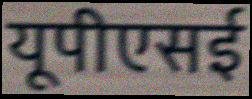
यूपीएसई